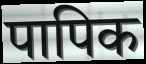
पापिक